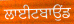
ਲਾਈਟਬਾਉਂਡ